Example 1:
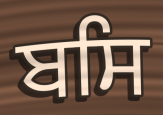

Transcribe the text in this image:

ਬਸਿ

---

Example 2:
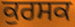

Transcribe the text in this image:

ਕੁਰਸਕ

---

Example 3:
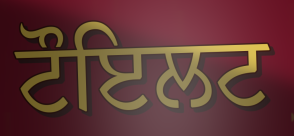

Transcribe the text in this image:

ਟੌਇਲਟ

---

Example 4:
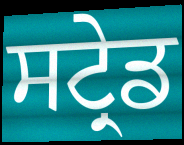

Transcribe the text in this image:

ਸਟ੍ਰੇਡ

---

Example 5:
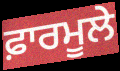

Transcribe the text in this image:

ਫ਼ਾਰਮੂਲੇ